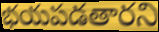
భయపడతారని